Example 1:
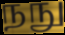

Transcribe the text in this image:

நநு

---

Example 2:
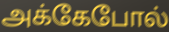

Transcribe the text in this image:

அக்கேபோல்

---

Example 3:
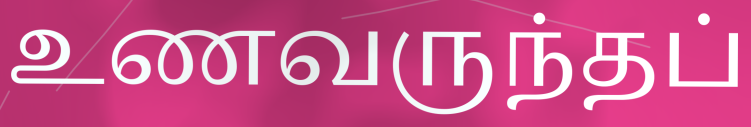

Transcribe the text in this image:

உணவருந்தப்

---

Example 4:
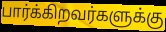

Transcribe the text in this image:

பார்க்கிறவர்களுக்கு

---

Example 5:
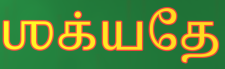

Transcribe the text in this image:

ஶக்யதே